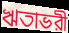
ঋতাভরী